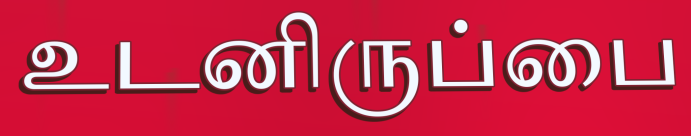
உடனிருப்பை